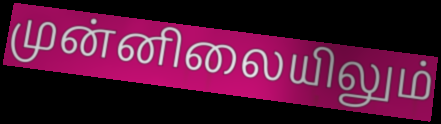
முன்னிலையிலும்